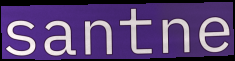
santne